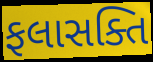
ફલાસક્તિ